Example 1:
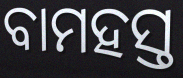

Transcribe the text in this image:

ବାମହସ୍ତ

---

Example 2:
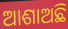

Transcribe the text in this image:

ଆଶାଅଛି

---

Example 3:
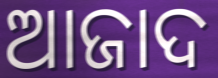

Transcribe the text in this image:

ଆଜାଦ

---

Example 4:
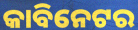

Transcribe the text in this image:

କାବିନେଟର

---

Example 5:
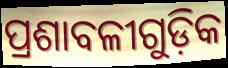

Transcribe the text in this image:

ପ୍ରଶାବଳୀଗୁଡ଼ିକ